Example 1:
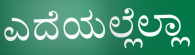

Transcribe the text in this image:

ಎದೆಯಲ್ಲೆಲ್ಲಾ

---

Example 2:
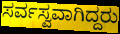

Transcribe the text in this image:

ಸರ್ವಸ್ವವಾಗಿದ್ದರು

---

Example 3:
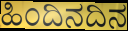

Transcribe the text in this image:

ಹಿಂದಿನದಿನ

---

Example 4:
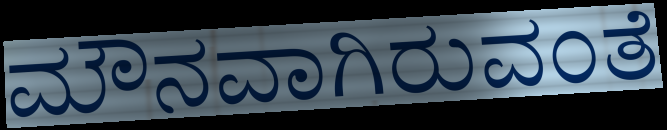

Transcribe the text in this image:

ಮೌನವಾಗಿರುವಂತೆ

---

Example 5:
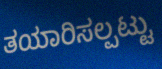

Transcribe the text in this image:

ತಯಾರಿಸಲ್ಪಟ್ಟು